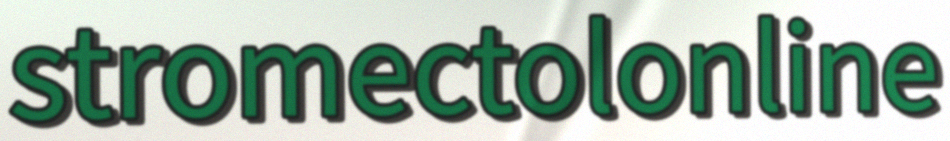
stromectolonline